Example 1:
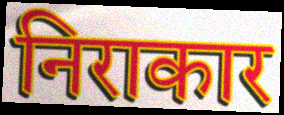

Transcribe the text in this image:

निराकार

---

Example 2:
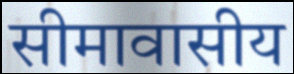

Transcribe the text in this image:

सीमावासीय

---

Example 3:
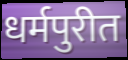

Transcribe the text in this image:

धर्मपुरीत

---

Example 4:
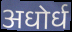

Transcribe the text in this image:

अधोर्ध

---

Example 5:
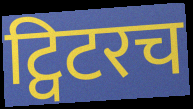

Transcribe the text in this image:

ट्विटरच